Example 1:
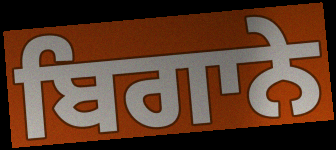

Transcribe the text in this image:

ਬਿਗਾਨੇ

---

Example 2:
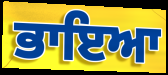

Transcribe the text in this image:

ਭਾਇਆ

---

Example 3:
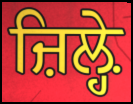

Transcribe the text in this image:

ਜ਼ਿਲ਼੍ਹੇ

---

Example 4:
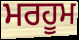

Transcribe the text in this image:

ਮਰਹੂਮ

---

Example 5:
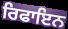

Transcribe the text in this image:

ਰਿਫਾਇਨ